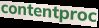
contentproc